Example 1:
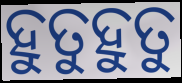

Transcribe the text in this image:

ହୁତୁହୁତୁ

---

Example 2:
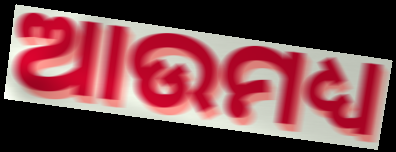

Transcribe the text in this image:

ଆଉମଧ୍ୟ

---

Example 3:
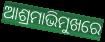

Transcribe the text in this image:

ଆଶ୍ରମାଭିମୁଖରେ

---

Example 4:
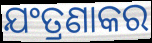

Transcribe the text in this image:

ଯଂତ୍ରଣାକର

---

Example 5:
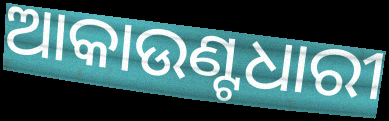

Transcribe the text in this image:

ଆକାଉଣ୍ଟଧାରୀ